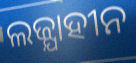
ଲଜ୍ଯାହୀନ